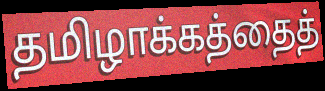
தமிழாக்கத்தைத்